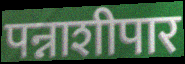
पन्नाशीपार